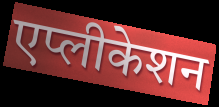
एप्‍लीकेशन